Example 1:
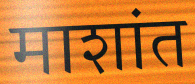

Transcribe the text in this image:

माशांत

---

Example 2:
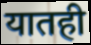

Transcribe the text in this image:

यातही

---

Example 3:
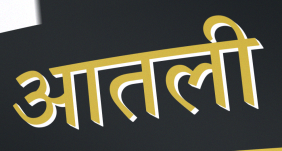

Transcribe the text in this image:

आतली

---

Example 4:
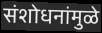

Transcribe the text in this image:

संशोधनांमुळे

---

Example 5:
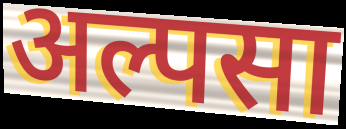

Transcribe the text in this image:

अल्पसा